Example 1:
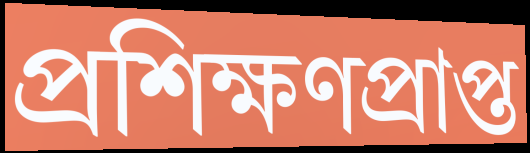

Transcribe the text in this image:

প্রশিক্ষণপ্রাপ্ত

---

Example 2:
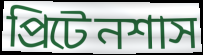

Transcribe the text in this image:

প্রিটেনশাস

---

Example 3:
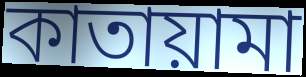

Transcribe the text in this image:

কাতায়ামা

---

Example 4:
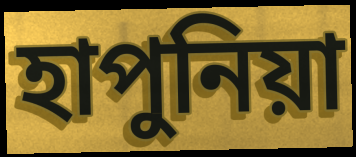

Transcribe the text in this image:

হাপুনিয়া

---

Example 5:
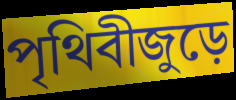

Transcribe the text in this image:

পৃথিবীজুড়ে